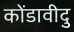
कोंडावीदु